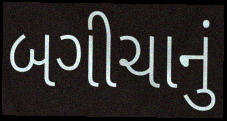
બગીચાનું